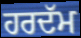
ਹਰਦੱਮ